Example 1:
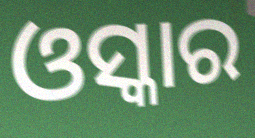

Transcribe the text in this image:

ଓସ୍କାର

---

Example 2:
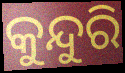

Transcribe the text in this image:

କୁନ୍ଦୁରି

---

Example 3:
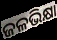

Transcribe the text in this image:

ଜଳଭିକ୍ଷା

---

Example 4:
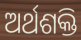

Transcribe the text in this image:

ଅର୍ଥଶକ୍ତି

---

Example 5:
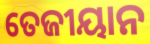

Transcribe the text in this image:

ତେଜୀୟାନ